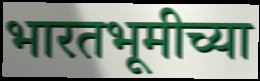
भारतभूमीच्या